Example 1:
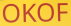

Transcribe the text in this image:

OKOF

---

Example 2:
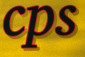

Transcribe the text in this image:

cps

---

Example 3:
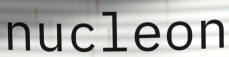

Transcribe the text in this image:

nucleon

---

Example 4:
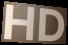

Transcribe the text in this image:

HD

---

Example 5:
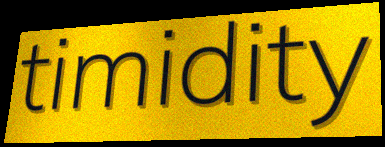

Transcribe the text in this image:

timidity